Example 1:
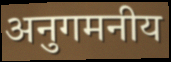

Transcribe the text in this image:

अनुगमनीय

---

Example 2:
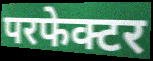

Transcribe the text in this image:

परफेक्टर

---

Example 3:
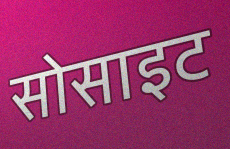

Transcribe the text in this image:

सोसाइट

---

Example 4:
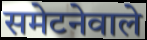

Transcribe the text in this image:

समेटनेवाले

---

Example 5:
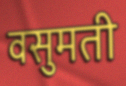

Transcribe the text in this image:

वसुमती